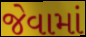
જેવામાં